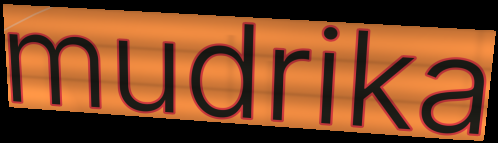
mudrika